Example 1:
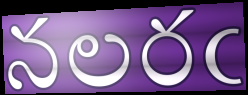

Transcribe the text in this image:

నలరఁ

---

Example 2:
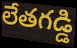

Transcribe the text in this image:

లేతగడ్డి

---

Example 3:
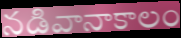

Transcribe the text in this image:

నడివానాకాలం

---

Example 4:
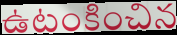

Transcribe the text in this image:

ఉటంకించిన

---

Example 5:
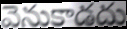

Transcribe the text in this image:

వెనుకాడదు